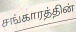
சங்காரத்தின்